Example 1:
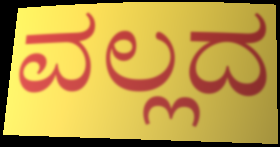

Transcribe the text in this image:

ವಲ್ಲದ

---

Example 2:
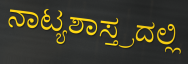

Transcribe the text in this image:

ನಾಟ್ಯಶಾಸ್ತ್ರದಲ್ಲಿ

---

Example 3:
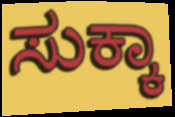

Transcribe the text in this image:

ಸುಕ್ಕಾ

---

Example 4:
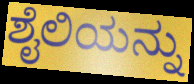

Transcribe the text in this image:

ಶೈಲಿಯನ್ನು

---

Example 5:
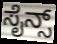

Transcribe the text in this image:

ಸೈನ್ಸ್